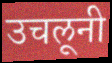
उचलूनी